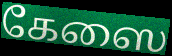
கேஸை